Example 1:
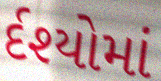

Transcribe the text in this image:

ર્દશ્યોમાં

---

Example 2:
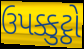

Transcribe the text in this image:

ઉપક્કુટ્ઠો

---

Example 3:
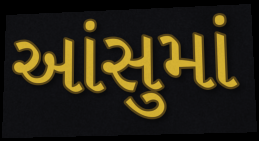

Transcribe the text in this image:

આંસુમાં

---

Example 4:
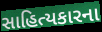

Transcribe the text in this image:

સાહિત્યકારના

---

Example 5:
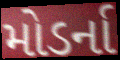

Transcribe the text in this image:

મોડર્ના